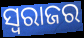
ସ୍ବରାଜର